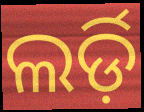
ଲର୍ଡ଼ି